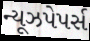
ન્યૂઝપેપર્સ